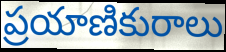
ప్రయాణికురాలు